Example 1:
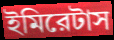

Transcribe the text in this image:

ইমিরেটাস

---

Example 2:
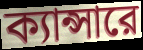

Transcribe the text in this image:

ক্যান্সারে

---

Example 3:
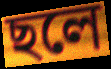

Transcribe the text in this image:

ছলে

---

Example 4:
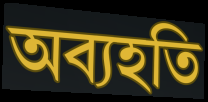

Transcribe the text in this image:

অব্যহতি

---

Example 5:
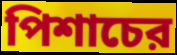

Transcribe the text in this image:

পিশাচের